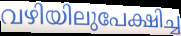
വഴിയിലുപേക്ഷിച്ച